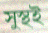
সুস্থই